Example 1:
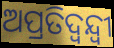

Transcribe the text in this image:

ଅପ୍ରତିଦ୍ବନ୍ଦ୍ବୀ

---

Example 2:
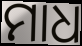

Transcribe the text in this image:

ମାଧ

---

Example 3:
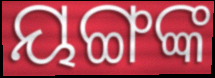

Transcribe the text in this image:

ୟଙ୍ଗଙ୍କ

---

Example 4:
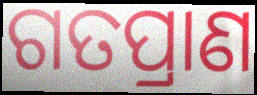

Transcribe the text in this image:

ଗତପ୍ରାଣ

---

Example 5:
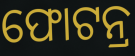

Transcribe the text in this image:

ଫୋଟନ୍ର